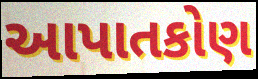
આપાતકોણ